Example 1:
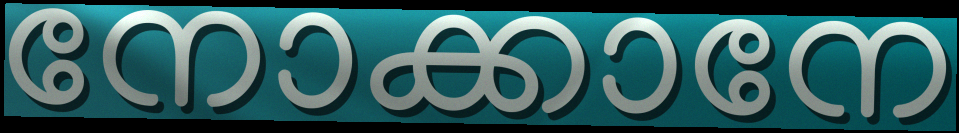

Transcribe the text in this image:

നോക്കാനേ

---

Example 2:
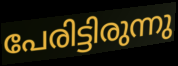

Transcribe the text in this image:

പേരിട്ടിരുന്നു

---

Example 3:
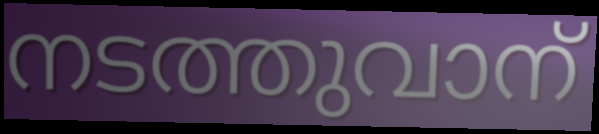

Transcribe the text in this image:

നടത്തുവാന്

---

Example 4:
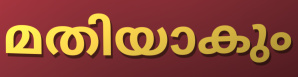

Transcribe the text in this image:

മതിയാകും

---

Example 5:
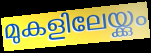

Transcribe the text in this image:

മുകളിലേയ്ക്കും